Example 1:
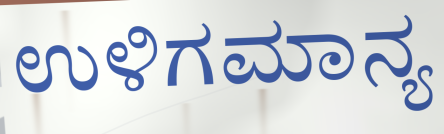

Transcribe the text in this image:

ಉಳಿಗಮಾನ್ಯ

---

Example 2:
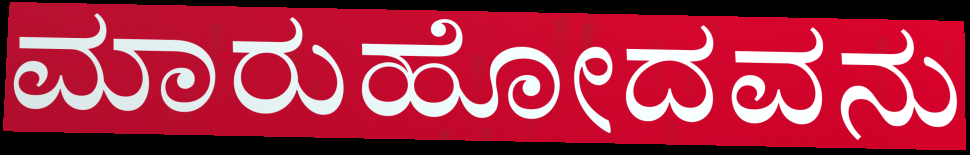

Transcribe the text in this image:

ಮಾರುಹೋದವನು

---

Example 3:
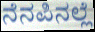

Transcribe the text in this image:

ನೆನಪಿನಲ್ಲೆ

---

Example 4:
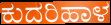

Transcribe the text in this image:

ಕುದರಿಹಾಳ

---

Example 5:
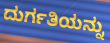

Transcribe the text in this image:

ದುರ್ಗತಿಯನ್ನು